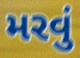
મરવું